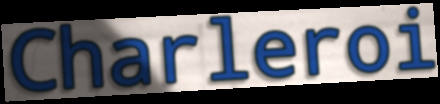
Charleroi